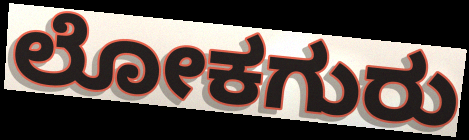
ಲೋಕಗುರು